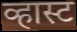
व्हास्ट